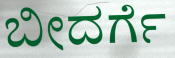
ಬೀದರ್ಗೆ